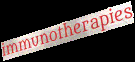
immunotherapies